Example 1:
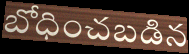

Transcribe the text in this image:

బోధించబడిన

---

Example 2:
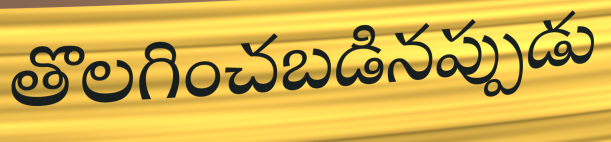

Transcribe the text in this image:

తొలగించబడినప్పుడు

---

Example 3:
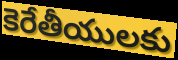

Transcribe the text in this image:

కెరేతీయులకు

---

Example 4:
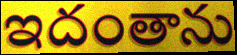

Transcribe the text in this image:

ఇదంతాను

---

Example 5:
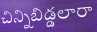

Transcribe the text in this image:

చిన్నిబిడ్డలారా